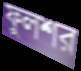
ফুলশর